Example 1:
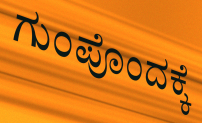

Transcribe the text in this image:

ಗುಂಪೊಂದಕ್ಕೆ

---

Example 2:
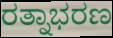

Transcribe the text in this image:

ರತ್ನಾಭರಣ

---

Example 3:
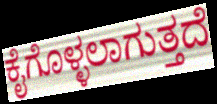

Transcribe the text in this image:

ಕೈಗೊಳ್ಳಲಾಗುತ್ತದೆ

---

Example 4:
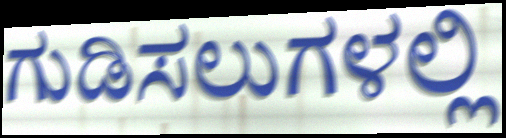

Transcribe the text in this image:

ಗುಡಿಸಲುಗಳಲ್ಲಿ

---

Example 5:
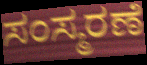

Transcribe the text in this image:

ಸಂಸ್ಮರಣೆ